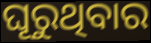
ଘୂରୁଥିବାର